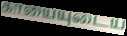
காயையுடைய